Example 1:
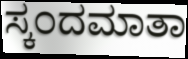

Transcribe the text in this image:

ಸ್ಕಂದಮಾತಾ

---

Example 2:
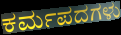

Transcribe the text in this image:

ಕರ್ಮಪದಗಳು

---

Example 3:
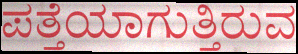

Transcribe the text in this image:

ಪತ್ತೆಯಾಗುತ್ತಿರುವ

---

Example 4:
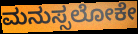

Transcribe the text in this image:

ಮನುಸ್ಸಲೋಕೇ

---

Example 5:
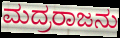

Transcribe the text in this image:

ಮದ್ರರಾಜನು